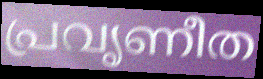
പ്രവൃണീത